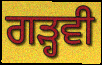
ਗੜ੍ਹਵੀ